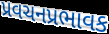
પ્રવચનપ્રભાવક